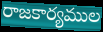
రాజకార్యముల